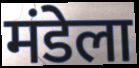
मंडेला